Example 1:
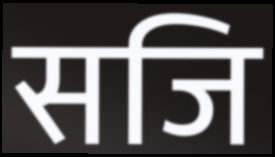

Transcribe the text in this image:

सजि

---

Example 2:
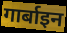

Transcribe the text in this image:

गार्बाइन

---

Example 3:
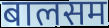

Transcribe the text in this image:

बालसम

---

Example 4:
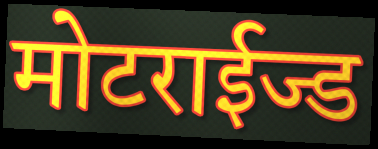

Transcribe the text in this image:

मोटराईज्ड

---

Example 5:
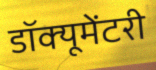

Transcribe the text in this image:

डॉक्यूमेंटरी